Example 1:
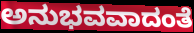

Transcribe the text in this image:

ಅನುಭವವಾದಂತೆ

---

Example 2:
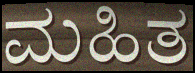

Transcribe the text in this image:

ಮಹಿತ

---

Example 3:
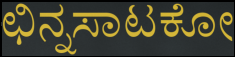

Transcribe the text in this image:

ಛಿನ್ನಸಾಟಕೋ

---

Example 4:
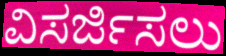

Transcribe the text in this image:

ವಿಸರ್ಜಿಸಲು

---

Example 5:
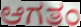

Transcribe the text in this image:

ಆಗತಂ